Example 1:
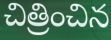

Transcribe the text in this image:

చిత్రించిన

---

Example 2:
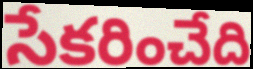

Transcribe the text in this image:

సేకరించేది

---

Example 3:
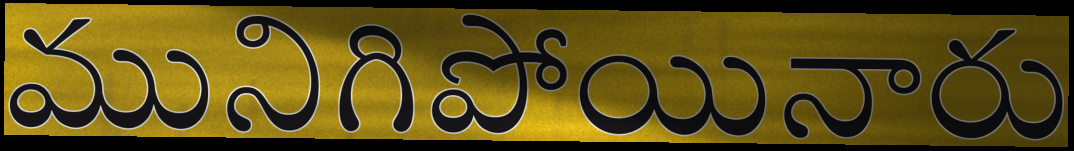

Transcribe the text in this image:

మునిగిపోయినారు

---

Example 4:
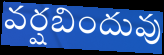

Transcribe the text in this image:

వర్షబిందువు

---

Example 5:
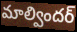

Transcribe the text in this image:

మాల్విందర్